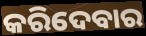
କରିଦେବାର